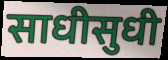
साधीसुधी